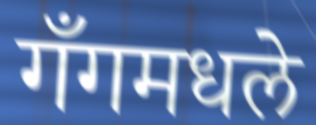
गँगमधले